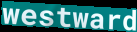
westward